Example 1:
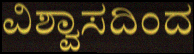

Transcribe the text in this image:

ವಿಶ್ವಾಸದಿಂದ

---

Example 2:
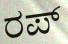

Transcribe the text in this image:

ರಪ್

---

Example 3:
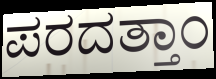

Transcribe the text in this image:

ಪರದತ್ತಾಂ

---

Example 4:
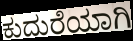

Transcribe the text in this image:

ಕುದುರೆಯಾಗಿ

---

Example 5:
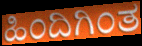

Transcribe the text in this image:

ಹಿಂದಿಗಿಂತ